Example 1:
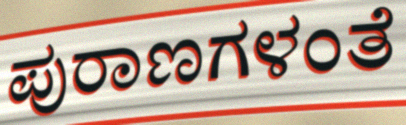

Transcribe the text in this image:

ಪುರಾಣಗಳಂತೆ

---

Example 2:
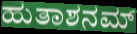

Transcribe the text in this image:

ಹುತಾಶನಮ್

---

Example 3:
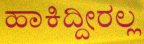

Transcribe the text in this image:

ಹಾಕಿದ್ದೀರಲ್ಲ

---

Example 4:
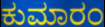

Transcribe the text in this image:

ಕುಮಾರಂ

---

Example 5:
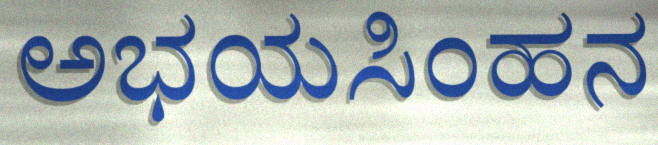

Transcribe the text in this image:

ಅಭಯಸಿಂಹನ